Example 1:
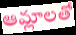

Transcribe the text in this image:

ఆమ్లాలతో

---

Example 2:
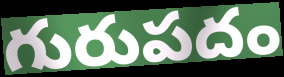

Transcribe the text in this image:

గురుపదం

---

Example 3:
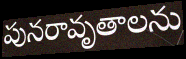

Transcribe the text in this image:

పునరావృతాలను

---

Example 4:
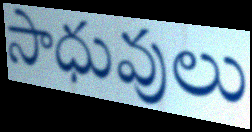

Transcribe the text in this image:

సాధువులు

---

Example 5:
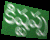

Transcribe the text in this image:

కిష్టప్ప